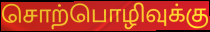
சொற்பொழிவுக்கு